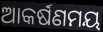
ଆକର୍ଷଣମୟ